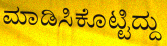
ಮಾಡಿಸಿಕೊಟ್ಟಿದ್ದು